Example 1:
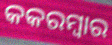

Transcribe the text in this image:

କକରମ୍ବାର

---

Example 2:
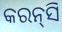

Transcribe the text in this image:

କରନ୍‌ସି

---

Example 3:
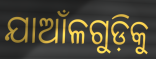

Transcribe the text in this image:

ଯାଆଁଳଗୁଡ଼ିକୁ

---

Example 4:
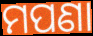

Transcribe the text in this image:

ମପଣା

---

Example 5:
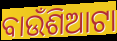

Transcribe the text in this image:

ବାଉଁଶିଆଟା